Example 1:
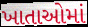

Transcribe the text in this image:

ખાતાઓમાં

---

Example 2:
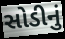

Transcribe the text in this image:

સોડીનું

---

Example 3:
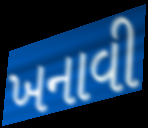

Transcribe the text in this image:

ખનાવી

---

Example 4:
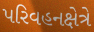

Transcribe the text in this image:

પરિવહનક્ષેત્રે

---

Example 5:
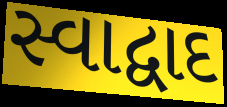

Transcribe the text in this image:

સ્વાદ્વાદ